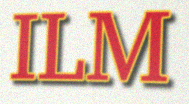
ILM